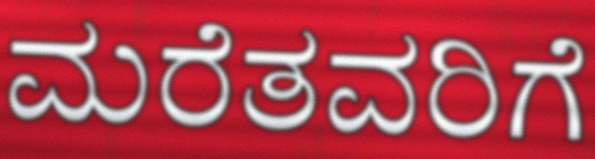
ಮರೆತವರಿಗೆ